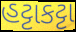
હટ્ટાકટ્ટા